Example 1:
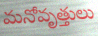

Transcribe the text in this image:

మనోవృత్తులు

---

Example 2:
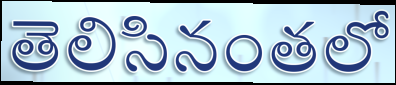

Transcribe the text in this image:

తెలిసినంతలో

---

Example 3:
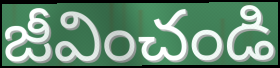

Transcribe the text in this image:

జీవించండి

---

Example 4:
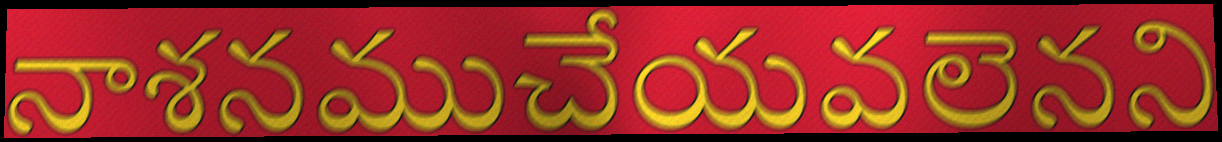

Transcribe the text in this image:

నాశనముచేయవలెనని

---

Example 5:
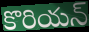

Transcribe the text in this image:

కొరియన్